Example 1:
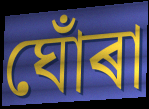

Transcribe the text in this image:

ঘোঁৰা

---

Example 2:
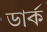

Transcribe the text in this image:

ডাৰ্ক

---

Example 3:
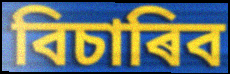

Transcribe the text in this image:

বিচাৰিব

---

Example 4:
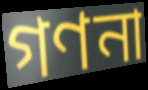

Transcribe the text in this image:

গণনা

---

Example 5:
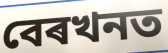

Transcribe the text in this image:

বেৰখনত